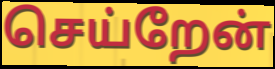
செய்றேன்